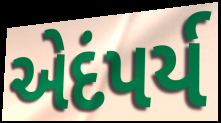
એદંપર્ય